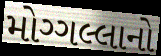
મોગ્ગલ્લાનો